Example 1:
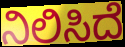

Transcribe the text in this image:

ನಿಲಿಸಿದೆ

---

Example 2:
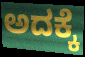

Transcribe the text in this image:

ಅದಕ್ಕೆ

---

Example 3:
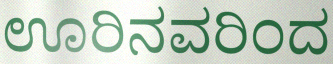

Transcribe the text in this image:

ಊರಿನವರಿಂದ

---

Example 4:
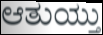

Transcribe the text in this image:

ಆತುಯ್ತು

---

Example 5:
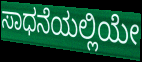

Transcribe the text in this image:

ಸಾಧನೆಯಲ್ಲಿಯೇ